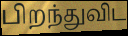
பிறந்துவிட